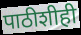
पाठीशीही